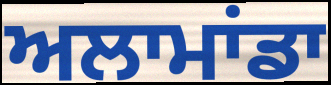
ਅਲਾਮਾਂਡਾ